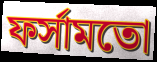
ফর্সামতো